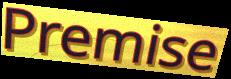
Premise